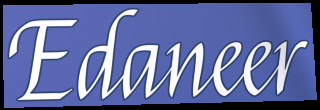
Edaneer